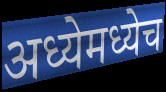
अध्येमध्येच